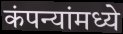
कंपन्यांमध्ये